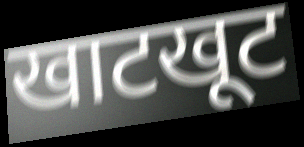
खाटखूट